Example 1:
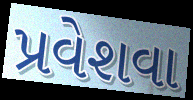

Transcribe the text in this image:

પ્રવેશવા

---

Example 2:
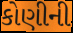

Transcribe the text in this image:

કોણીની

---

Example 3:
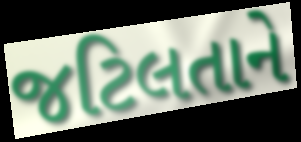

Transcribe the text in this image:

જટિલતાને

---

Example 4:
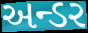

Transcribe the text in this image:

અન્ડર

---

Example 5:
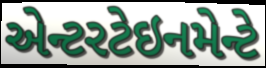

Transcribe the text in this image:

એન્ટરટેઇનમેન્ટે